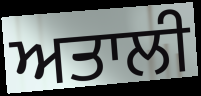
ਅਤਾਲੀ